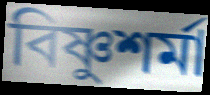
বিষ্ণুশর্মা